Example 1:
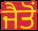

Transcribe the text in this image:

ਜੈਤੋਂ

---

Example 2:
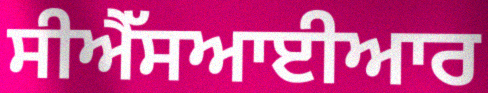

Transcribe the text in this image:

ਸੀਐੱਸਆਈਆਰ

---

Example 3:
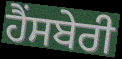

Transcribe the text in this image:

ਹੈਂਸਬੇਰੀ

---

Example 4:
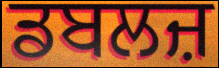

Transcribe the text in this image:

ਡਬਲਜ਼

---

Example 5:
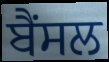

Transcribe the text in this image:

ਬੈਂਸਲ